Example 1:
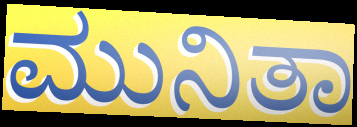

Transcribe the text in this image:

ಮುನಿತಾ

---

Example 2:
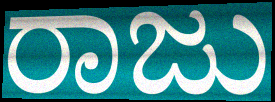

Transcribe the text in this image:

ರಾಜು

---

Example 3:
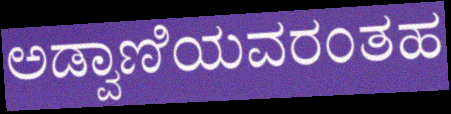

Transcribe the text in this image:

ಅಡ್ವಾಣಿಯವರಂತಹ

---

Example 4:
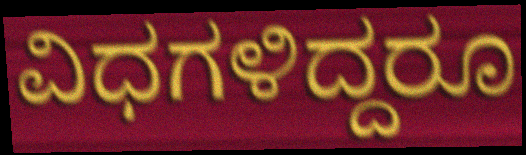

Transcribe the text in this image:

ವಿಧಗಳಿದ್ದರೂ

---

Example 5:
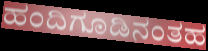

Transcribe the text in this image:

ಹಂದಿಗೂಡಿನಂತಹ